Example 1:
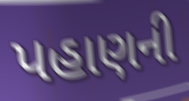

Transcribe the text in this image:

પહાણની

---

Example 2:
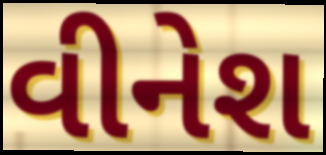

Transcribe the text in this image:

વીનેશ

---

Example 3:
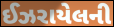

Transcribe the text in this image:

ઈઝરાયેલની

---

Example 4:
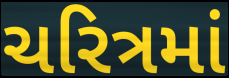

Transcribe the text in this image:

ચરિત્રમાં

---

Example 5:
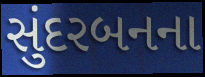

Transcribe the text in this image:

સુંદરબનના